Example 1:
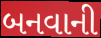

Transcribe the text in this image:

બનવાની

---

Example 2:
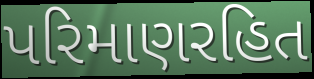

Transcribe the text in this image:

પરિમાણરહિત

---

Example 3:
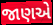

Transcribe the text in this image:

જાણએ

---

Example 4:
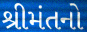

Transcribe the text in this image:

શ્રીમંતનો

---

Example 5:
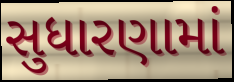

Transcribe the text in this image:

સુધારણામાં